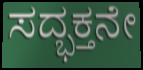
ಸದ್ಭಕ್ತನೇ